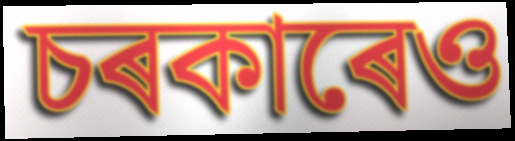
চৰকাৰেও